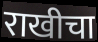
राखीचा